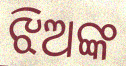
ଝିଅଙ୍କ